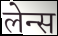
लेन्स